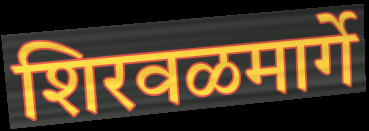
शिरवळमार्गे